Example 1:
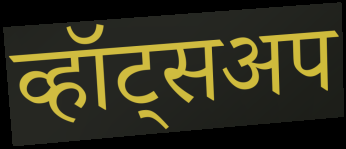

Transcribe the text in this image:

व्हॉट्सअप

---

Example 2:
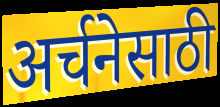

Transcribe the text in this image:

अर्चनेसाठी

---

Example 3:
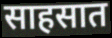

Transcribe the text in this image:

साहसात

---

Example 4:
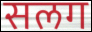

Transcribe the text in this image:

सलग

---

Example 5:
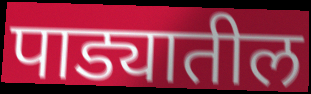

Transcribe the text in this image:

पाड्यातील